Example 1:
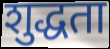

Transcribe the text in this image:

शुद्धता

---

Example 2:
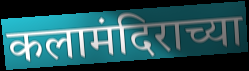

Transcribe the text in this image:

कलामंदिराच्या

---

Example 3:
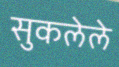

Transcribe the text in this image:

सुकलेले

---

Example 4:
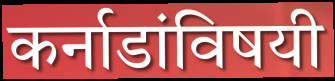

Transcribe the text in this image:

कर्नाडांविषयी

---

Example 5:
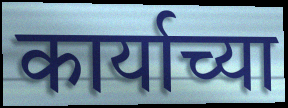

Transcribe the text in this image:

कार्याच्या